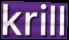
krill